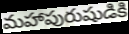
మహాపురుషుడికి